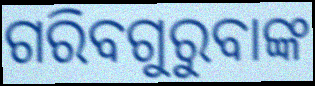
ଗରିବଗୁରୁବାଙ୍କ